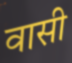
वासी